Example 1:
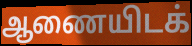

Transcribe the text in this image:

ஆணையிடக்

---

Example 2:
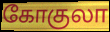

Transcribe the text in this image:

கோகுலா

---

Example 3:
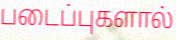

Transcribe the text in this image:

படைப்புகளால்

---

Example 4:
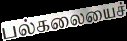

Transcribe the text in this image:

பல்கலையைச்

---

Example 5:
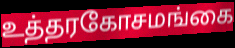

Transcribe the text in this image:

உத்தரகோசமங்கை